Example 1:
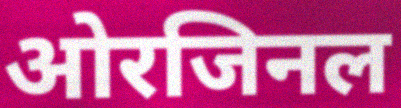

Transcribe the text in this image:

ओरजिनल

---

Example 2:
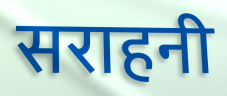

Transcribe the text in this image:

सराहनी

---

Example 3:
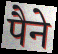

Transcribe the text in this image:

पैने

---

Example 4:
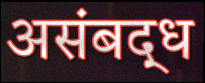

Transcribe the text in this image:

असंबद्ध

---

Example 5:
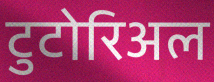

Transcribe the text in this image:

टुटोरिअल